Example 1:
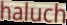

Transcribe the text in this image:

haluch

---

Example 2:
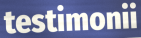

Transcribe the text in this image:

testimonii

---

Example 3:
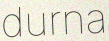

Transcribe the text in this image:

durna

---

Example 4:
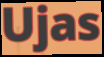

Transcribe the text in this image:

Ujas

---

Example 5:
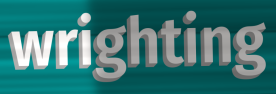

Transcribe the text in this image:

wrighting